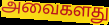
அவைகளது